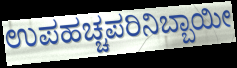
ಉಪಹಚ್ಚಪರಿನಿಬ್ಬಾಯೀ